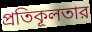
প্রতিকূলতার